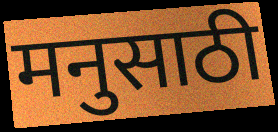
मनुसाठी